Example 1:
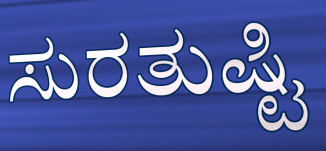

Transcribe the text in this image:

ಸುರತುಷ್ಟಿ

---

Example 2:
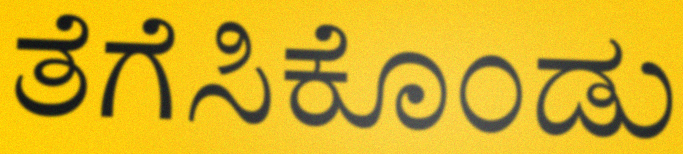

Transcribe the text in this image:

ತೆಗೆಸಿಕೊಂಡು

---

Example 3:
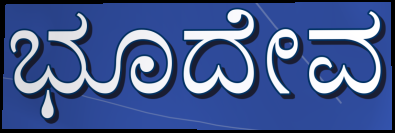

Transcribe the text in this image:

ಭೂದೇವ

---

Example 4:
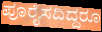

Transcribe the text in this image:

ಪೂರೈಸದಿದ್ದರೂ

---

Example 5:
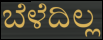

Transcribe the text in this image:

ಬೆಳೆದಿಲ್ಲ